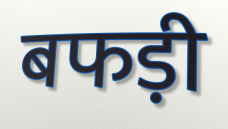
बफड़ी